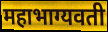
महाभाग्यवती